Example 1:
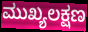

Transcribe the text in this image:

ಮುಖ್ಯಲಕ್ಷಣ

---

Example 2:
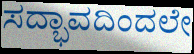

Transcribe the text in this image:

ಸದ್ಭಾವದಿಂದಲೇ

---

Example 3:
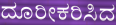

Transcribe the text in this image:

ದೂರೀಕರಿಸಿದ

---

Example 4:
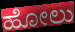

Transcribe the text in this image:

ಹೋಲು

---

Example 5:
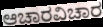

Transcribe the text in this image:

ಆಚಾರವಿಚಾರ